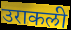
उराकली